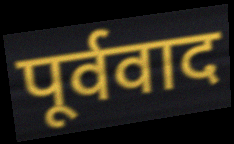
पूर्ववाद